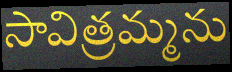
సావిత్రమ్మను